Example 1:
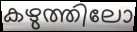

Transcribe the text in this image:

കഴുത്തിലോ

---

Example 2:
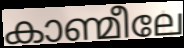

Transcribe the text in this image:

കാണ്മീലേ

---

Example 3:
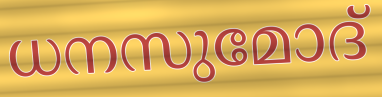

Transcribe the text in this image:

ധനസുമോദ്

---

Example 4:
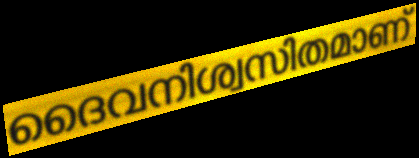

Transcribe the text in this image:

ദൈവനിശ്വസിതമാണ്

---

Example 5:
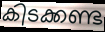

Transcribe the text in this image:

കിടക്കണ്ട